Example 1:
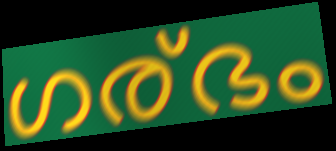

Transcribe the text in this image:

ഗര്ഭം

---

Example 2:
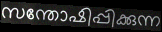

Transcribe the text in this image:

സന്തോഷിപ്പിക്കുന്ന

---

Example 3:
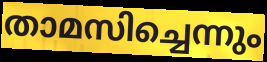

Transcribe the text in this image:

താമസിച്ചെന്നും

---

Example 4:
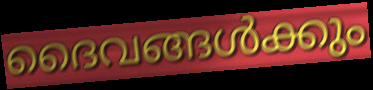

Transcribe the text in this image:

ദൈവങ്ങൾക്കും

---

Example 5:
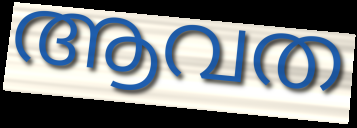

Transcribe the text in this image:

ആവത